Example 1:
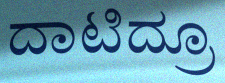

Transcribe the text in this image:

ದಾಟಿದ್ರೂ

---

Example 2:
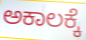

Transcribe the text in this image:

ಅಕಾಲಕ್ಕೆ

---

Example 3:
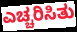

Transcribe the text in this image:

ಎಚ್ಚರಿಸಿತು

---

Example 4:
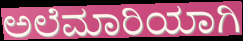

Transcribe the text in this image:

ಅಲೆಮಾರಿಯಾಗಿ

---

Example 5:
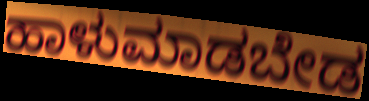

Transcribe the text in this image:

ಹಾಳುಮಾಡಬೇಡ